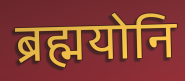
ब्रह्मयोनि